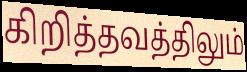
கிறித்தவத்திலும்